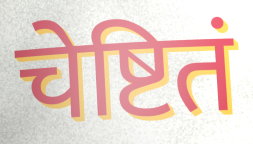
चेष्टितं